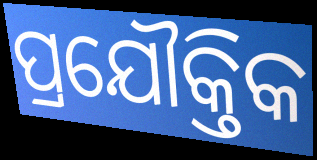
ପ୍ରଯୌକ୍ତିକ